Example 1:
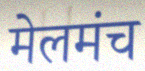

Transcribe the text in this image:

मेलमंच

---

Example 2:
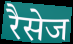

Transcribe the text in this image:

रैसेज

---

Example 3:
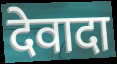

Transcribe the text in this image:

देवादा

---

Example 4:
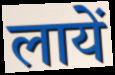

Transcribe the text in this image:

लायें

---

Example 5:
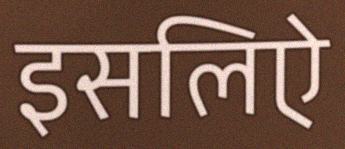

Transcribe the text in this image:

इसलिऐ